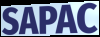
SAPAC